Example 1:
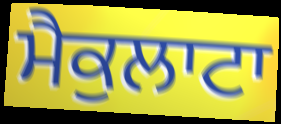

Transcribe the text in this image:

ਮੈਕੁਲਾਟਾ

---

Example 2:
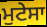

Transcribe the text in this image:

ਮੁਟੇਸਾ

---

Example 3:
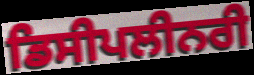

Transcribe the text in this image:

ਡਿਸੀਪਲੀਨਰੀ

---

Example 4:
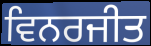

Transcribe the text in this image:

ਵਿਨਰਜੀਤ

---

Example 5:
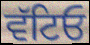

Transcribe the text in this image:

ਵੱਟਿਓ